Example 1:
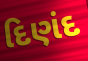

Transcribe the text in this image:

દિણંદ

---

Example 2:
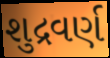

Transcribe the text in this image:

શુદ્રવર્ણ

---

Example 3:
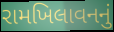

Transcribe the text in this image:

રામખિલાવનનું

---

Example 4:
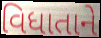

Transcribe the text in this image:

વિધાતાને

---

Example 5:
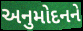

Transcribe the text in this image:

અનુમોદનને